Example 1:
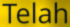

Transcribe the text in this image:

Telah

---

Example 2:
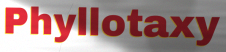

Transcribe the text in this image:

Phyllotaxy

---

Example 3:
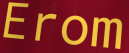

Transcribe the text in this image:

Erom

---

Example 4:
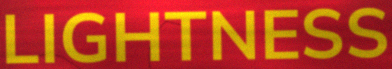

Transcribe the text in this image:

LIGHTNESS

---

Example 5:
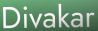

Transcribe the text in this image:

Divakar